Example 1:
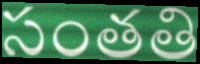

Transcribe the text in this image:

సంతతి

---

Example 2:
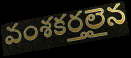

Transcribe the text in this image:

వంశకర్తలైన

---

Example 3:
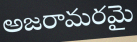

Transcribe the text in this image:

అజరామరమై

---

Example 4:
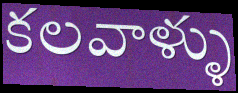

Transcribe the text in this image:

కలవాళ్ళు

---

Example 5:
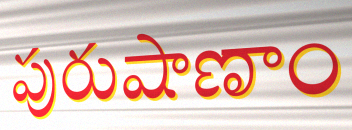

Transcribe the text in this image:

పురుషాణాం